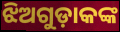
ଝିଅଗୁଡ଼ାକଙ୍କ